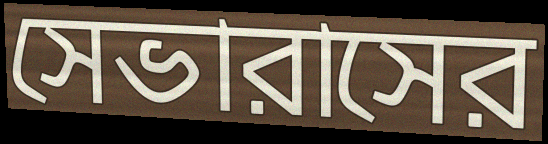
সেভারাসের